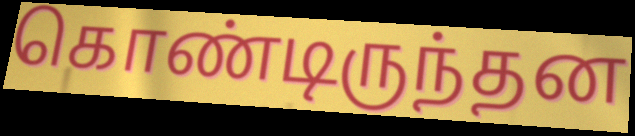
கொண்டிருந்தன